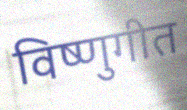
विष्णुगीत